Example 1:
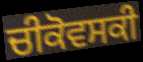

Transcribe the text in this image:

ਚੀਕੋਵਸਕੀ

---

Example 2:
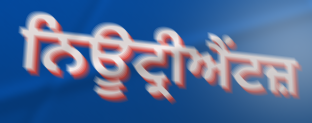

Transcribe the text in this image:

ਨਿਊਟ੍ਰੀਐਂਟਜ਼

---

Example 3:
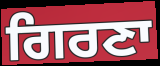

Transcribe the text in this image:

ਗਿਰਣਾ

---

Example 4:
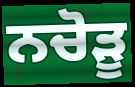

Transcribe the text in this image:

ਨਚੋੜੂ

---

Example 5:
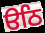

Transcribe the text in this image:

ੳਠਿ